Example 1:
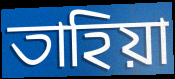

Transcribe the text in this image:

তাহিয়া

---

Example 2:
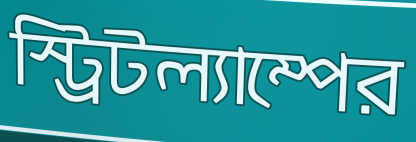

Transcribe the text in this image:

স্ট্রিটল্যাম্পের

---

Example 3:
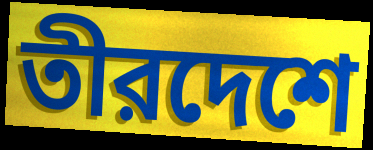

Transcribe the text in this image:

তীরদেশে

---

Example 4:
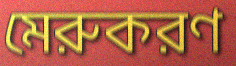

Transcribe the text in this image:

মেরুকরণ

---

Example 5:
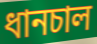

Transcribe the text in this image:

ধানচাল